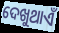
ଦେଖୁଥାଏଁ